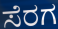
ಸೆರಗ